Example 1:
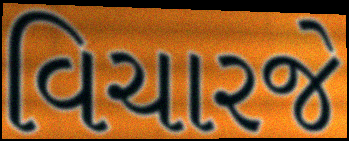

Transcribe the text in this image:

વિચારજે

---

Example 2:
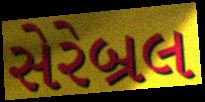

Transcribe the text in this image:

સેરેબ્રલ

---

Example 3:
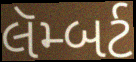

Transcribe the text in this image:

લૅમ્બર્ટ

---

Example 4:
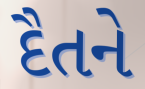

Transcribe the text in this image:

દૈતને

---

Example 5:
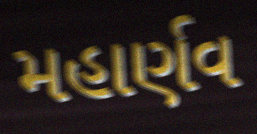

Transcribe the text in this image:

મહાર્ણવ